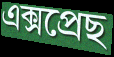
এক্সপ্ৰেছ